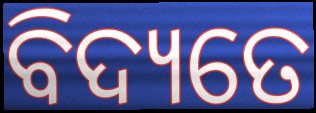
ବିଦ୍ୟତେ